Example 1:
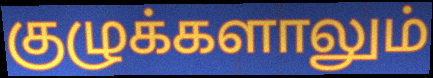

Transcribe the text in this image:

குழுக்களாலும்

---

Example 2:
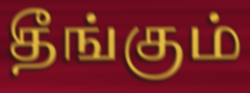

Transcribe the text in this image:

தீங்கும்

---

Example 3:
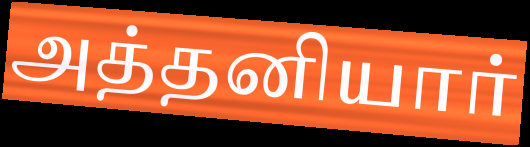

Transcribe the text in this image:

அத்தனியார்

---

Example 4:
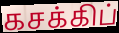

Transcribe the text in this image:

கசக்கிப்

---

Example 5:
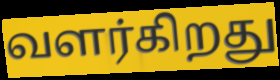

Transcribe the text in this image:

வளர்கிறது